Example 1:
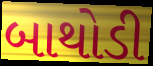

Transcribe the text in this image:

બાથોડી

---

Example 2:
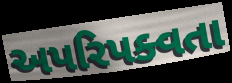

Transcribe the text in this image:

અપરિપક્વતા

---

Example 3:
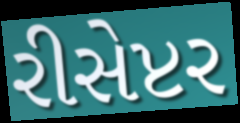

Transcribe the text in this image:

રીસેપ્ટર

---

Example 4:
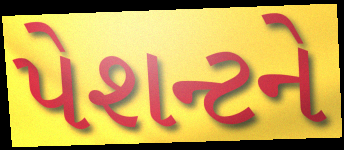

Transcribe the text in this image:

પેશન્ટને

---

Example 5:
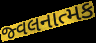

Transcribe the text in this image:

જ્વલનાત્મક